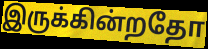
இருக்கின்றதோ